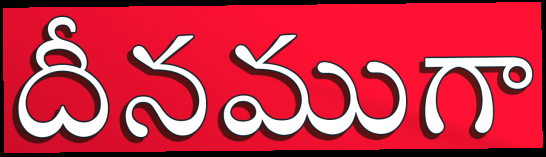
దీనముగా